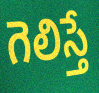
గెలిస్తే